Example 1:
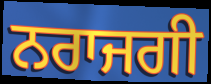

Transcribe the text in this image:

ਨਰਾਜਗੀ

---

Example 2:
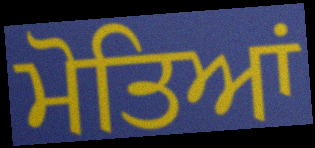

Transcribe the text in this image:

ਮੋਤਿਆਂ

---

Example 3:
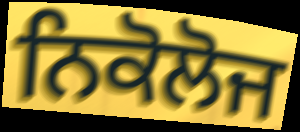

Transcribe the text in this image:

ਨਿਕੋਲੋਜ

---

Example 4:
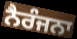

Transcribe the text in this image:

ਨੈਰੰਜਨਾ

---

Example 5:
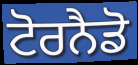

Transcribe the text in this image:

ਟੋਰਨੈਡੋ